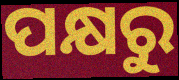
ପକ୍ଷରୁ